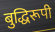
बुद्धिरूपी